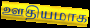
ஊதியமாக